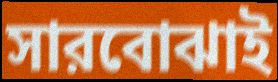
সারবোঝাই